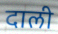
दाली